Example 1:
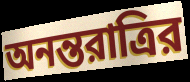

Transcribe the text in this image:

অনন্তরাত্রির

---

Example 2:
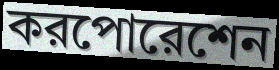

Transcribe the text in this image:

করপোরেশেন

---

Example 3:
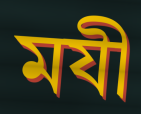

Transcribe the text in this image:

মযী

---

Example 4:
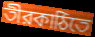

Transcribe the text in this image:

তীরকাঠিতে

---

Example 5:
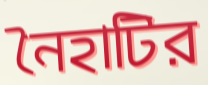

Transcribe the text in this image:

নৈহাটির